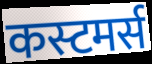
कस्‍टमर्स